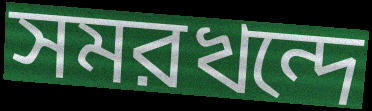
সমরখন্দে